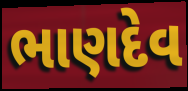
ભાણદેવ